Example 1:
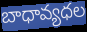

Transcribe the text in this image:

బాధావ్యధల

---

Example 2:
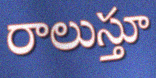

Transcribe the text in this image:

రాలుస్తూ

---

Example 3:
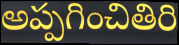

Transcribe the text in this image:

అప్పగించితిరి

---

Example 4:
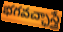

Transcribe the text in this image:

భగవచ్ఛాస్త్రే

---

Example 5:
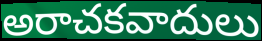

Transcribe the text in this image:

అరాచకవాదులు